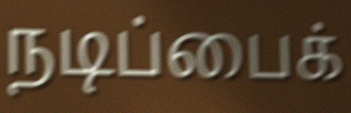
நடிப்பைக்